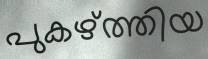
പുകഴ്ത്തിയ